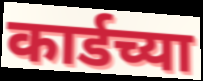
कार्डच्या